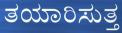
ತಯಾರಿಸುತ್ತ